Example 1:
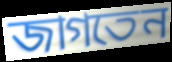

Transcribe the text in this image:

জাগতেন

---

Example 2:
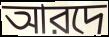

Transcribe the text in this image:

আরদে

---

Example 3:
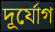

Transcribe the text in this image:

দূর্যোগ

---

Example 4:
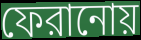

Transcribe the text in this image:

ফেরানোয়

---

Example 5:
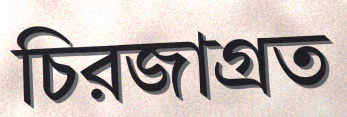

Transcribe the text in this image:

চিরজাগ্রত